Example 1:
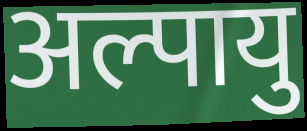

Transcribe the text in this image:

अल्पायु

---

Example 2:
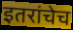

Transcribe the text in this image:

इतरांचेच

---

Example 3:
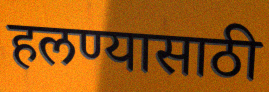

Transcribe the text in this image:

हलण्यासाठी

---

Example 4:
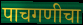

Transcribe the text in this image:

पाचगणीचा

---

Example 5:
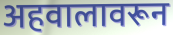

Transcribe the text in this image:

अहवालावरून